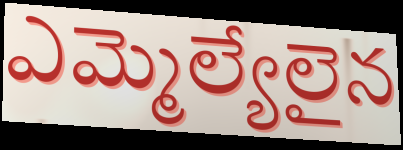
ఎమ్మెల్యేలైన